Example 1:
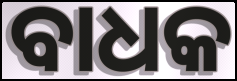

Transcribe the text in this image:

ବାଧକ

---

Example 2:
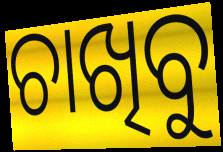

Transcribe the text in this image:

ଚାଖିବୁ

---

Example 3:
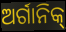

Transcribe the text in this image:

ଅର୍ଗାନିକ୍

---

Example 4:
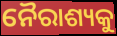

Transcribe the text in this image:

ନୈରାଶ୍ୟକୁ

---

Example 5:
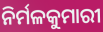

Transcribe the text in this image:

ନିର୍ମଳକୁମାରୀ